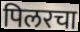
पिलरचा